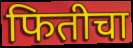
फितीचा